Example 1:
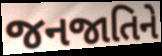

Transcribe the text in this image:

જનજાતિને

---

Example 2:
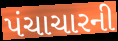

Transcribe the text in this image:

પંચાચારની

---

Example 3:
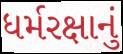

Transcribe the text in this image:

ધર્મરક્ષાનું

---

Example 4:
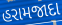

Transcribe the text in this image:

હરામજાદા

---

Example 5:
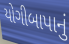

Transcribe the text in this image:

યોગીબાપાનું